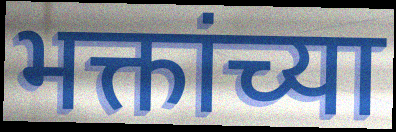
भक्तांच्या